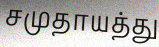
சமுதாயத்து